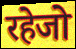
रहेजो